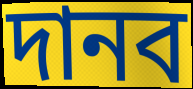
দানব